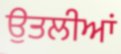
ਉਤਲੀਆਂ